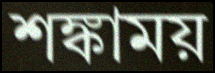
শঙ্কাময়